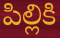
పిల్లికి